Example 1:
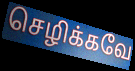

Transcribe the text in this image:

செழிக்கவே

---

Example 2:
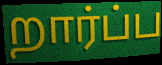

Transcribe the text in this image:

றார்ப்ப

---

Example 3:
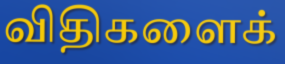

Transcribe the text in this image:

விதிகளைக்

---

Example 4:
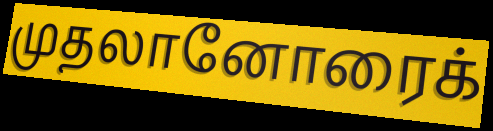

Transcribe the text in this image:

முதலானோரைக்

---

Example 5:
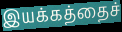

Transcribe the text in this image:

இயக்கத்தைச்